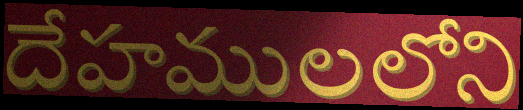
దేహములలోని